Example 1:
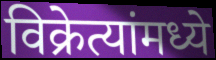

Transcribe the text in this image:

विक्रेत्यांमध्ये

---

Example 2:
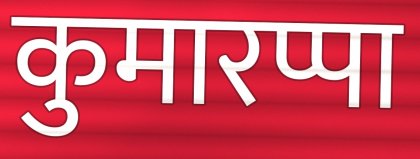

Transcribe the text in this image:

कुमारप्पा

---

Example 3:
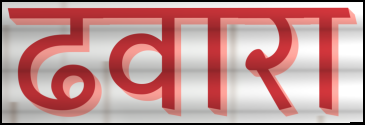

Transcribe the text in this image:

ढवारा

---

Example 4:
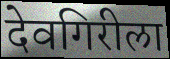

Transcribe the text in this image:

देवगिरीला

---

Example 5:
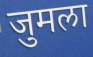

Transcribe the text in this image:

जुमला